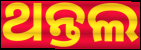
ଥନ୍ତଲ